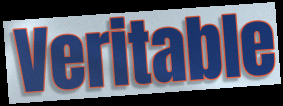
Veritable